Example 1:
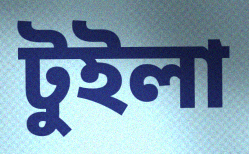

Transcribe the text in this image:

টুইলা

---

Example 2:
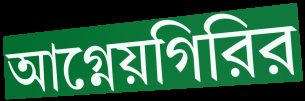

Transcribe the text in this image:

আগ্নেয়গিরির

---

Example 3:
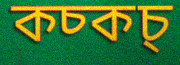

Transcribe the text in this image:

কচ্কচ্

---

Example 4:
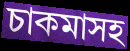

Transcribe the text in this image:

চাকমাসহ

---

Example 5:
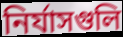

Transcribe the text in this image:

নির্যাসগুলি